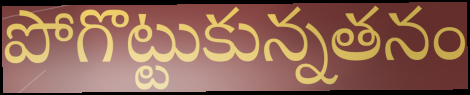
పోగొట్టుకున్నతనం